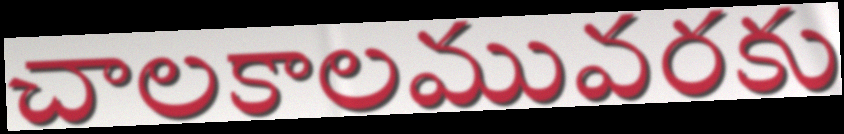
చాలకాలమువరకు